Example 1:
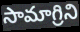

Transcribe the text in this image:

సామాగ్రిని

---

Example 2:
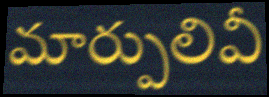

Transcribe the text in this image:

మార్పులివీ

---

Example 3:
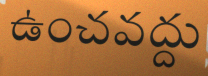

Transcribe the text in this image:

ఉంచవద్దు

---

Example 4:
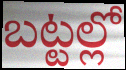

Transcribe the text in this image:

బట్టల్లో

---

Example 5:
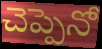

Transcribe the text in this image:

చెప్పెనో